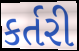
કર્તરી